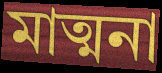
মাত্মনা